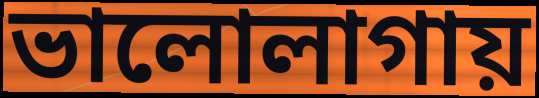
ভালোলাগায়